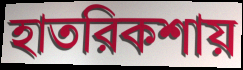
হাতরিকশায়